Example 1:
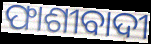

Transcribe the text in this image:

ଫାଶୀବାଦୀ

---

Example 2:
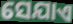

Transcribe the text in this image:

ସେଯାଏ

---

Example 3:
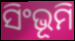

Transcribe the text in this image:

ସିଂଭୂମି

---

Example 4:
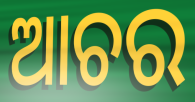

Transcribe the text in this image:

ଆଚର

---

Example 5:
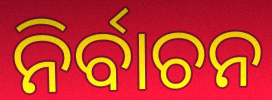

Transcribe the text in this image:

ନିର୍ବାଚନ